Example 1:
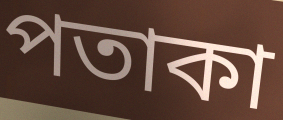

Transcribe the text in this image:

পতাকা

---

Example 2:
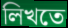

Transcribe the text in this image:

লিখতে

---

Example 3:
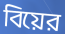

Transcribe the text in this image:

বিয়ের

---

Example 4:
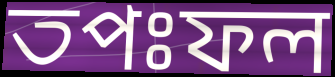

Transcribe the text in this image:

তপঃফল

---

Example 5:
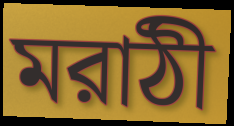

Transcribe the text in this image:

মরাঠী